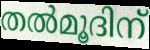
തൽമൂദിന്